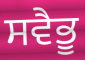
ਸਵੈਭੂ